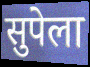
सुपेला